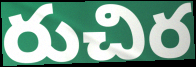
రుచిర